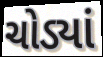
ચોડ્યાં